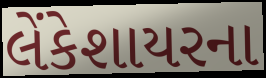
લેંકેશાયરના